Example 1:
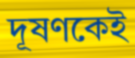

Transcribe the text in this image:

দূষণকেই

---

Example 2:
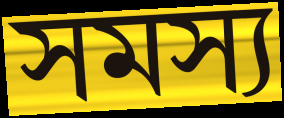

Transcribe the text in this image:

সমস্য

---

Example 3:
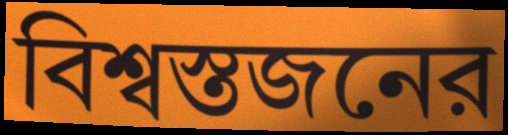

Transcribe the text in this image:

বিশ্বস্তজনের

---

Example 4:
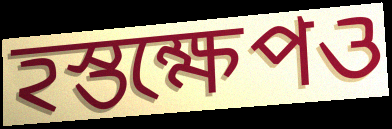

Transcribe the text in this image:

হস্তক্ষেপও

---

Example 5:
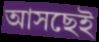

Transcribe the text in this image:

আসছেই